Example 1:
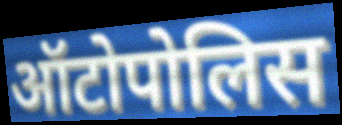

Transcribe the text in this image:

ऑटोपोलिस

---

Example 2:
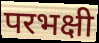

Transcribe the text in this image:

परभक्षी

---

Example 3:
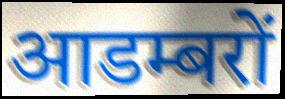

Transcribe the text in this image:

आडम्बरों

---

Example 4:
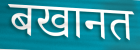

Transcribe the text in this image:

बखानत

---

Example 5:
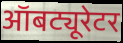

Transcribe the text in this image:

ऑबट्यूरेटर